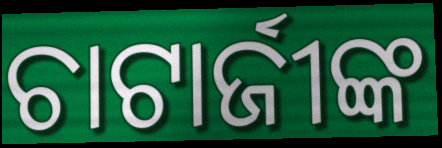
ଚାଟାର୍ଜୀଙ୍କ